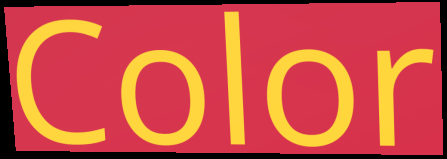
Color